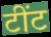
टींट